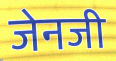
जेनजी